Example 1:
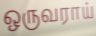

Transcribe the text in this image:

ஒருவராய்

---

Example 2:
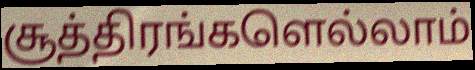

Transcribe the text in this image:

சூத்திரங்களெல்லாம்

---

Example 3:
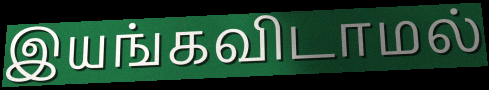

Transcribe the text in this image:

இயங்கவிடாமல்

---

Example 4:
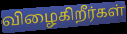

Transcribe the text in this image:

விழைகிறீர்கள்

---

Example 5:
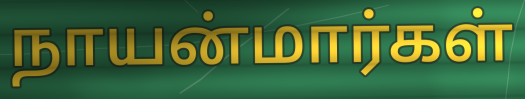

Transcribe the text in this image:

நாயன்மார்கள்